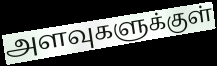
அளவுகளுக்குள்